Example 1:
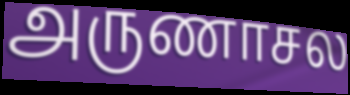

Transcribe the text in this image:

அருணாசல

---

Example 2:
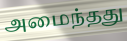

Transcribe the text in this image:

அமைந்தது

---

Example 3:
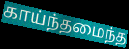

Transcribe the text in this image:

காய்ந்தமைந்த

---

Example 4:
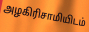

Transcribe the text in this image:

அழகிரிசாமியிடம்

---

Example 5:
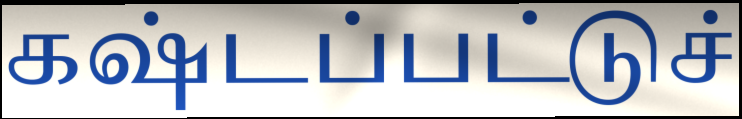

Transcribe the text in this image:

கஷ்டப்பட்டுச்